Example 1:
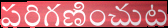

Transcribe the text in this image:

పరిగణించుట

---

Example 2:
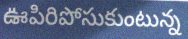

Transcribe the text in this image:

ఊపిరిపోసుకుంటున్న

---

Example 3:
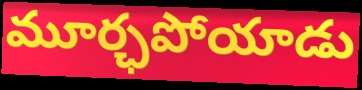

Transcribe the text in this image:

మూర్ఛపోయాడు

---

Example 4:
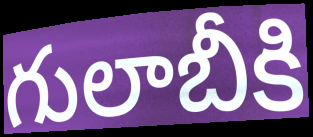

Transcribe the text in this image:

గులాబీకి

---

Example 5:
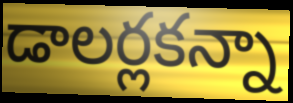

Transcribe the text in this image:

డాలర్లకన్నా